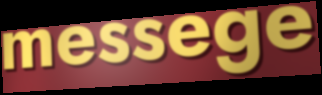
messege